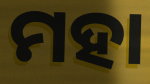
ମହା